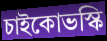
চাইকোভস্কি